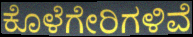
ಕೊಳೆಗೇರಿಗಳಿವೆ